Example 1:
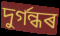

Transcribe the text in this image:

দুৰ্গন্ধৰ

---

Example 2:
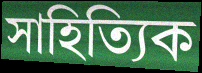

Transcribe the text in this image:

সাহিত্য়িক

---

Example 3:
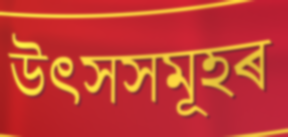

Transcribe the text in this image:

উৎসসমূহৰ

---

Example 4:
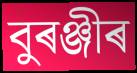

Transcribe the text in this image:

বুৰঞ্জীৰ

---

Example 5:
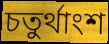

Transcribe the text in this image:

চতুৰ্থাংশ